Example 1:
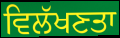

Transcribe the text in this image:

ਵਿਲੱਖਣਤਾ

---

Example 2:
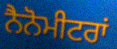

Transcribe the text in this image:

ਨੈਨੋਮੀਟਰਾਂ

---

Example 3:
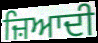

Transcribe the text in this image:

ਜ਼ਿਆਦੀ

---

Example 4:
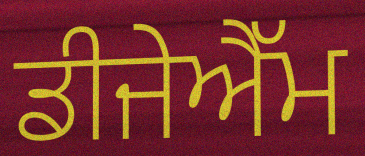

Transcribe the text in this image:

ਡੀਜੇਐੱਮ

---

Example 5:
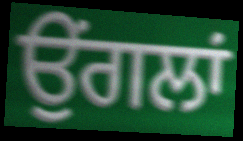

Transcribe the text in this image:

ਉੰਗਲਾਂ